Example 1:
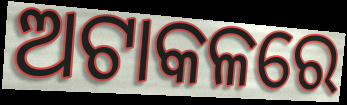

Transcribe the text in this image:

ଅଟାକଳରେ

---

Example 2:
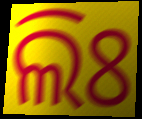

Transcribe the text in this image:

ଲିଃ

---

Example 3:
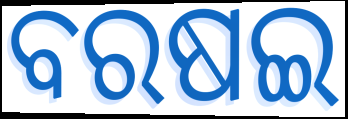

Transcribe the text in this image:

ବରଷଇ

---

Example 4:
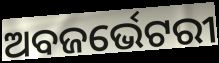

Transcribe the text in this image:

ଅବଜର୍ଭେଟରୀ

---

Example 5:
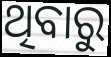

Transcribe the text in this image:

ଥିବାରୁ